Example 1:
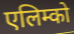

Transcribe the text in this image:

एलिम्को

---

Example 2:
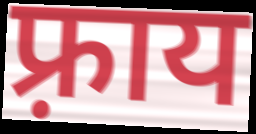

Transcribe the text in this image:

फ़्राय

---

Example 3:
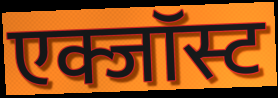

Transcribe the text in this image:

एक्जॉस्ट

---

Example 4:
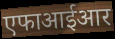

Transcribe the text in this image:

एफाआईआर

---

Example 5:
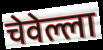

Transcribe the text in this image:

चेवेल्ला